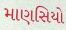
માણસિયો